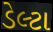
ડેલ્ટા